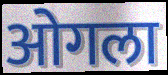
ओगला